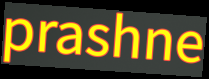
prashne